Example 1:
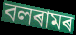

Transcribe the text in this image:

বলৰামৰ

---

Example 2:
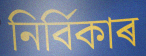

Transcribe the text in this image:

নিৰ্বিকাৰ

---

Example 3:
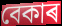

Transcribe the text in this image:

বেকাৰ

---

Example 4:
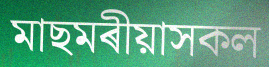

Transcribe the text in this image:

মাছমৰীয়াসকল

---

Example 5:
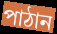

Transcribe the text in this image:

পাঠান